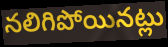
నలిగిపోయినట్లు